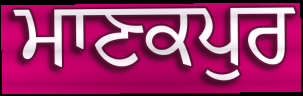
ਮਾਣਕਪੁਰ